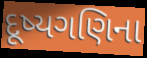
દૂષ્યગણિના